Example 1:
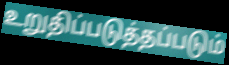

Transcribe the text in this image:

உறுதிப்படுத்தப்படும்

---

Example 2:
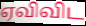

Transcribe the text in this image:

ஏவிவிட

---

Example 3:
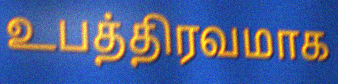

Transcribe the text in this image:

உபத்திரவமாக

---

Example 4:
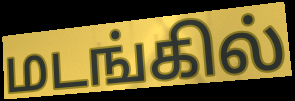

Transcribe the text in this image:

மடங்கில்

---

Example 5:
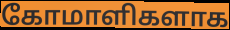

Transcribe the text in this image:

கோமாளிகளாக